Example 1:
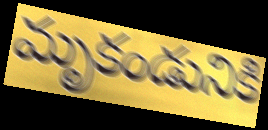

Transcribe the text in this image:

మృకండునికి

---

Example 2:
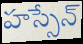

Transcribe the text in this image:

హస్సేన్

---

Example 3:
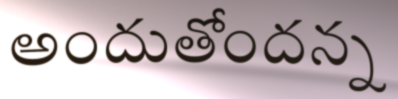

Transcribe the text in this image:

అందుతోందన్న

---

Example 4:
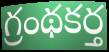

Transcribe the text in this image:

గ్రంథకర్త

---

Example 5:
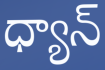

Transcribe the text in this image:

ధ్యాన్